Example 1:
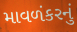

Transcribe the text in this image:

માવળંકરનું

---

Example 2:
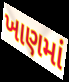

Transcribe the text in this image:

ખાણમાં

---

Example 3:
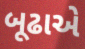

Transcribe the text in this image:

બૂઢાએ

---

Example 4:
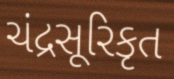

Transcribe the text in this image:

ચંદ્રસૂરિકૃત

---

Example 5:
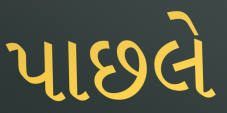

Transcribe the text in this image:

પાછલે